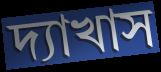
দ্যাখাস